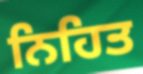
ਨਿਹਿਤ